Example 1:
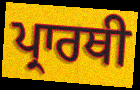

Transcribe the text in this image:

ਪ੍ਰਾਰਥੀ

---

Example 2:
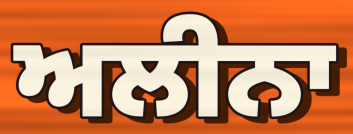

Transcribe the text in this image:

ਅਲੀਨਾ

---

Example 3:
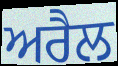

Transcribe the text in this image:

ਅਰੈਲ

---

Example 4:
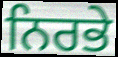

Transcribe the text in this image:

ਨਿਰਭੇ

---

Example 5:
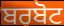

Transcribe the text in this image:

ਬਰਬੋਟ